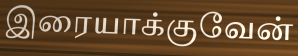
இரையாக்குவேன்